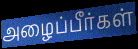
அழைப்பீர்கள்